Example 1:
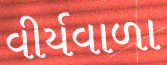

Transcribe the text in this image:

વીર્યવાળા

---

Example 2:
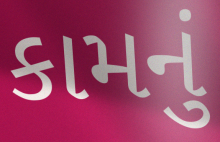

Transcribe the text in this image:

કામનું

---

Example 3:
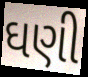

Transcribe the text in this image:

ઘણી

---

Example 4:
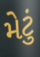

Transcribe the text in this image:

મેટું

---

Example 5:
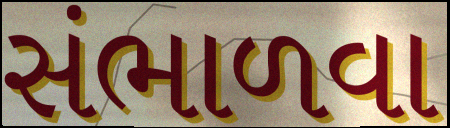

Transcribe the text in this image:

સંભાળવા